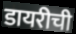
डायरीची